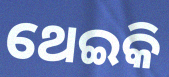
ଥେଇକି